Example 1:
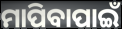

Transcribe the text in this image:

ମାପିବାପାଇଁ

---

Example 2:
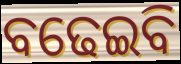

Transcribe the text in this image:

ବଢେଇବି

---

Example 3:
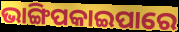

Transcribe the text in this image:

ଭାଙ୍ଗିପକାଇପାରେ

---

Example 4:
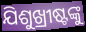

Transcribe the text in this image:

ଯିଶୁଖ୍ରୀଷ୍ଟଙ୍କୁ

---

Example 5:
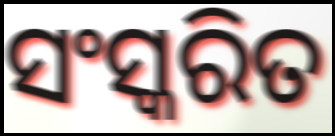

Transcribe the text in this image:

ସଂସ୍କରିତ